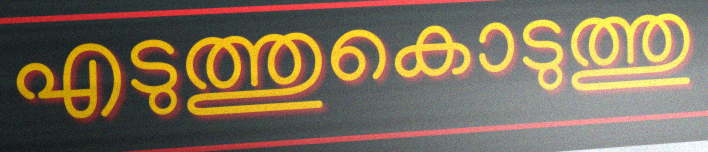
എടുത്തുകൊടുത്തു